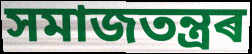
সমাজতন্ত্ৰৰ